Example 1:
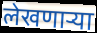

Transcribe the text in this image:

लेखणाऱ्या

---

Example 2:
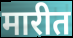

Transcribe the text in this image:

मारीत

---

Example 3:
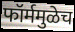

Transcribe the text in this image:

फॉर्ममुळेच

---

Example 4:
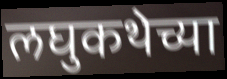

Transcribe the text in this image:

लघुकथेच्या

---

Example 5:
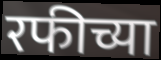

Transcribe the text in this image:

रफीच्या